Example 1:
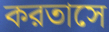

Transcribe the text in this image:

করতাসে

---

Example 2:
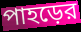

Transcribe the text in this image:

পাহড়ের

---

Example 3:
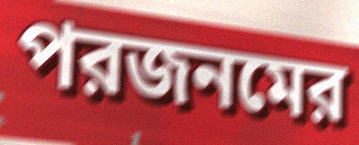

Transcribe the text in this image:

পরজনমের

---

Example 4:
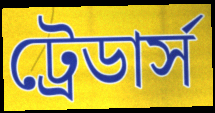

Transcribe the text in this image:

ট্রেডার্স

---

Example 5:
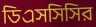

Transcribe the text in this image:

ডিএসসিসির